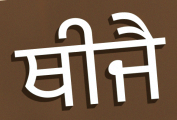
ਥੀਜੈ